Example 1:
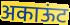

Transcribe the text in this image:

अकाऊंट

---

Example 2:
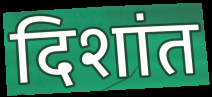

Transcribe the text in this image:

दिशांत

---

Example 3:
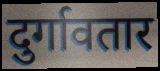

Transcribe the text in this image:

दुर्गावतार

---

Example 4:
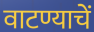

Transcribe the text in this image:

वाटण्याचें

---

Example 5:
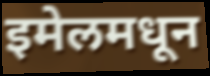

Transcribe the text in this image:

इमेलमधून